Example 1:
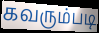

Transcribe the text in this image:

கவரும்படி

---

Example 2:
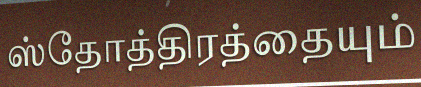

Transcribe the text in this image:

ஸ்தோத்திரத்தையும்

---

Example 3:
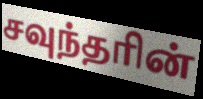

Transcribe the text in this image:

சவுந்தரின்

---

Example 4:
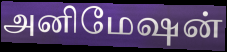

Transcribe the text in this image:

அனிமேஷன்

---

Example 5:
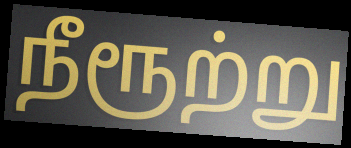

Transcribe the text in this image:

நீரூற்று